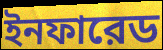
ইনফারেড